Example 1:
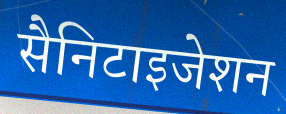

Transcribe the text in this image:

सैनिटाइजेशन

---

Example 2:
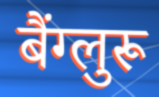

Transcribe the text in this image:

बैंग्लुरू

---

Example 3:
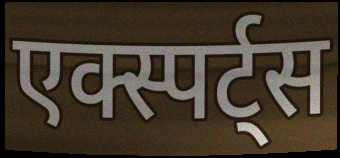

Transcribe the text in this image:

एक्स्पर्ट्स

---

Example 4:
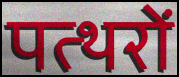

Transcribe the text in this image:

पत्‍थरों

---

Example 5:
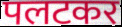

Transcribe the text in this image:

पलटकर